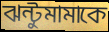
ঝন্টুমামাকে